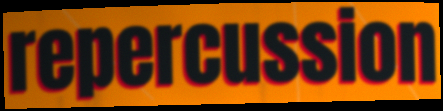
repercussion